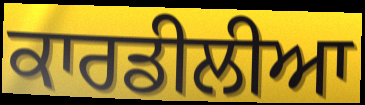
ਕਾਰਡੀਲੀਆ